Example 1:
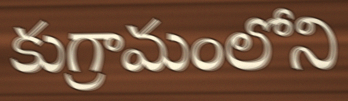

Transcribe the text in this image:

కుగ్రామంలోని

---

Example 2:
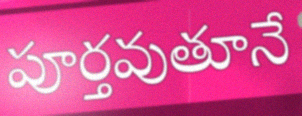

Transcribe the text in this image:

పూర్తవుతూనే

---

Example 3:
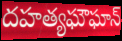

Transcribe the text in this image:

దహత్యఘౌఘాన్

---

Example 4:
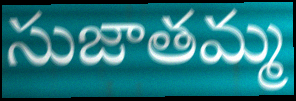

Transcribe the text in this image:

సుజాతమ్మ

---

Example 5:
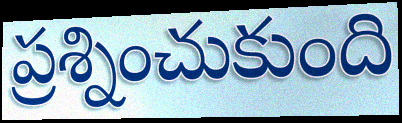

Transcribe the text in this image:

ప్రశ్నించుకుంది